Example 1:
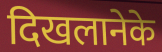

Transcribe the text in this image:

दिखलानेके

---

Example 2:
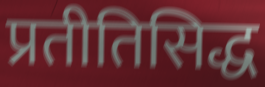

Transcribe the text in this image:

प्रतीतिसिद्ध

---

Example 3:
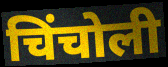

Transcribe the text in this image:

चिंचोली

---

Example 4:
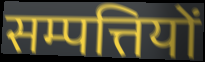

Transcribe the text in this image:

सम्‍पत्तियों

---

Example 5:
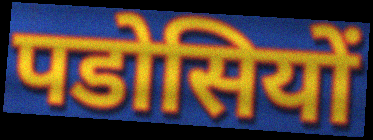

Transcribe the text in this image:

पडोसियों